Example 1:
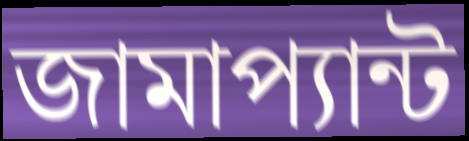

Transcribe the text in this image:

জামাপ্যান্ট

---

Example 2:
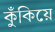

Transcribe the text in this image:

কুঁকিয়ে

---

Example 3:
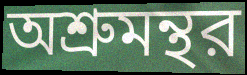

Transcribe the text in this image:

অশ্রুমন্থর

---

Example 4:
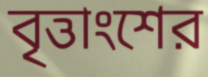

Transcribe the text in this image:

বৃত্তাংশের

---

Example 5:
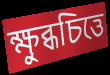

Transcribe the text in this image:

ক্ষুব্ধচিত্তে